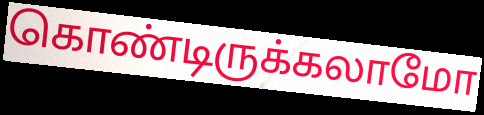
கொண்டிருக்கலாமோ